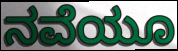
ನವೆಯೂ